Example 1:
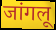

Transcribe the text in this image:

जांगलू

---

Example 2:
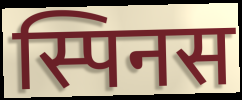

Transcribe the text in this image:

स्पिनस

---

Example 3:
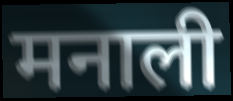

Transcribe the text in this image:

मनाली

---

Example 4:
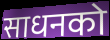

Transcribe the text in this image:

साधनको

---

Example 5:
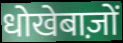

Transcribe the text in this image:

धोखेबाज़ों